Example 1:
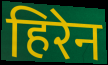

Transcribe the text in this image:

हिरेन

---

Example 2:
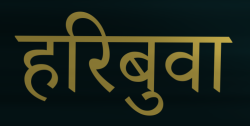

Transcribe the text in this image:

हरिबुवा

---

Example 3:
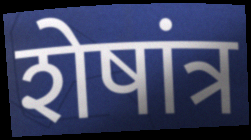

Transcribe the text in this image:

शेषांत्र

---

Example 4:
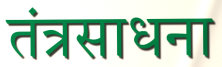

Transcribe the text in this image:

तंत्रसाधना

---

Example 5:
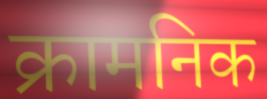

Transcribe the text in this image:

क्रामनिक